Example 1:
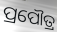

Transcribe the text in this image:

ପ୍ରପୌତ୍ର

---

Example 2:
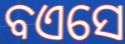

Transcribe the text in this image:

ବଏସେ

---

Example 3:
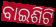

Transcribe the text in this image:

ବାଇଶିଟି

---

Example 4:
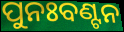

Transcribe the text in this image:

ପୁନଃବଣ୍ଟନ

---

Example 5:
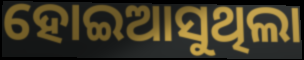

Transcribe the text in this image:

ହୋଇଆସୁଥିଲା